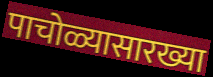
पाचोळ्यासारख्या